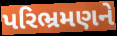
પરિભ્રમણને